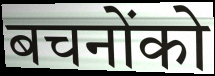
बचनोंको